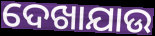
ଦେଖାଯାଉ